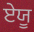
ਏਯੂ